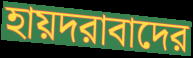
হায়দরাবাদের